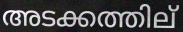
അടക്കത്തില്